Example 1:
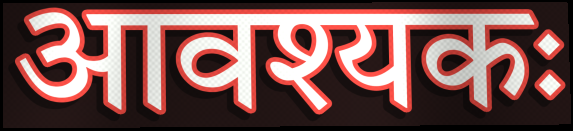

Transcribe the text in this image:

आवश्यकः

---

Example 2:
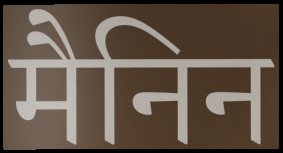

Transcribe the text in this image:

मैनिन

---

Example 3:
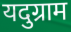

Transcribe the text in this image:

यदुग्राम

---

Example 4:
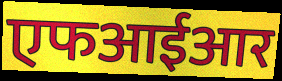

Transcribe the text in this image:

एफआईआर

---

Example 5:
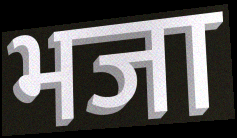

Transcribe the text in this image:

भजा